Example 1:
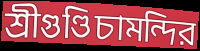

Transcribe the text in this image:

শ্রীগুণ্ডিচামন্দির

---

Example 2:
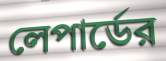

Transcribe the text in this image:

লেপার্ডের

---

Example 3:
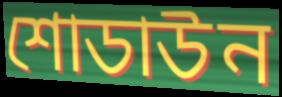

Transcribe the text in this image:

শোডাউন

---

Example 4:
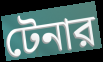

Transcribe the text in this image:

টেনার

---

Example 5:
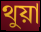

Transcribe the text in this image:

থুয়া